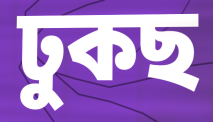
ঢুকছ